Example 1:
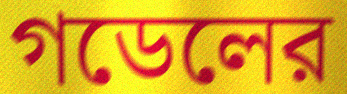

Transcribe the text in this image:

গডেলের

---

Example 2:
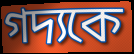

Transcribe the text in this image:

গদ্যকে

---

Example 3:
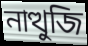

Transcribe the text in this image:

নাত্থুজি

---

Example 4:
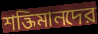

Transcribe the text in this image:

শক্তিমানদের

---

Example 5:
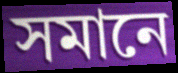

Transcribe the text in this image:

সমানে